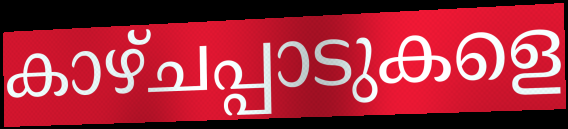
കാഴ്ചപ്പാടുകളെ